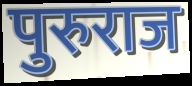
पुरुराज